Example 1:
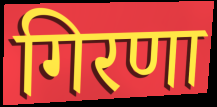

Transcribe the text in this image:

गिरणा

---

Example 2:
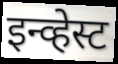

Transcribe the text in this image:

इन्व्हेस्ट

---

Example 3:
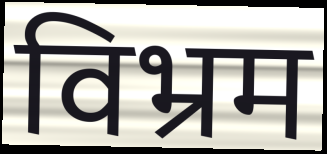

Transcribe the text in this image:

विभ्रम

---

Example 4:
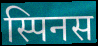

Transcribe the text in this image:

स्पिनस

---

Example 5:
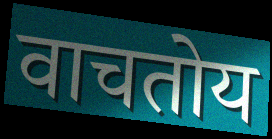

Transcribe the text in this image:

वाचतोय